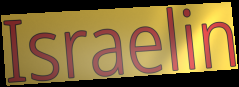
Israelin